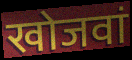
खोजवां